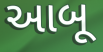
આબૂ